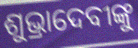
ଶୁଭ୍ରାଦେବୀଙ୍କୁ